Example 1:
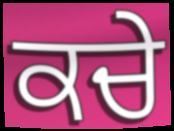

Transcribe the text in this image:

ਕਚੇ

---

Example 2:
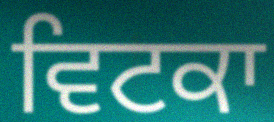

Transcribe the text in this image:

ਵਿਟਕਾ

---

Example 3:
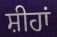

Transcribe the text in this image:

ਸ਼ੀਹਾਂ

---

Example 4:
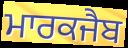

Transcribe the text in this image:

ਮਾਰਕਜੈਬ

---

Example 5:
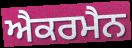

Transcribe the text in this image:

ਐਕਰਮੈਨ